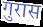
गुरास